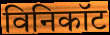
विनिकॉट